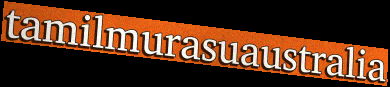
tamilmurasuaustralia